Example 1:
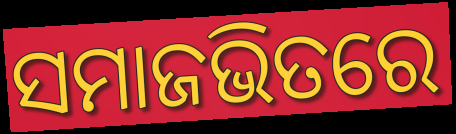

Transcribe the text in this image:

ସମାଜଭିତରେ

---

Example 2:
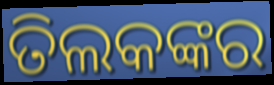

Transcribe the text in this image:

ତିଲକଙ୍କର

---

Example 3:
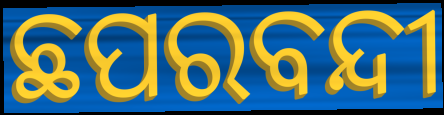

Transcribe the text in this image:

ଛପରବନ୍ଦୀ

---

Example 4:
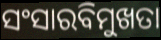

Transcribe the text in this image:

ସଂସାରବିମୁଖତା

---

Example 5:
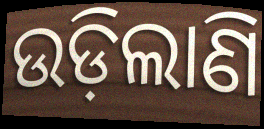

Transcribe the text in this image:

ଉଡ଼ିଲାଣି